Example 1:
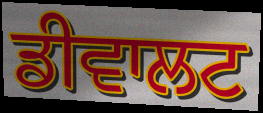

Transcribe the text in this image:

ਡੀਵਾਲਟ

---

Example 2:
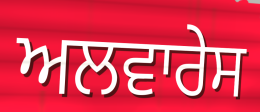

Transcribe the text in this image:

ਅਲਵਾਰੇਸ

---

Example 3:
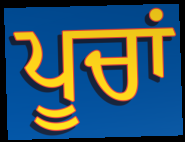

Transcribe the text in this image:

ਪੂਚਾਂ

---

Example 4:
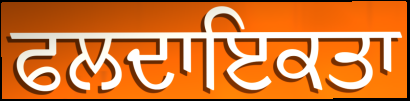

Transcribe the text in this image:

ਫਲਦਾਇਕਤਾ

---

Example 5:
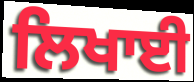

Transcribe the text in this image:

ਲਿਖਾਈ